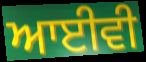
ਆਈਵੀ